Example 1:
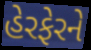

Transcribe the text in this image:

હેરફેરને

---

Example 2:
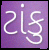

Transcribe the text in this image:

ટાંકુ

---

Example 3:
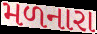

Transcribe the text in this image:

મળનારા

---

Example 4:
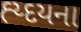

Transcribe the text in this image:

હ્ય્દયના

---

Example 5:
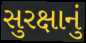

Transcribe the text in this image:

સુરક્ષાનું